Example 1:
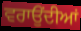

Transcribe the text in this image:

ਵਰਾਉਂਦੀਆਂ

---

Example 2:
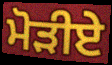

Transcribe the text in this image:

ਮੋੜੀਏ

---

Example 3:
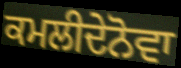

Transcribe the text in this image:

ਕਮਲੀਦੇਨੋਵਾ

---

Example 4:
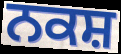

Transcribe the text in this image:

ਨਕਸ਼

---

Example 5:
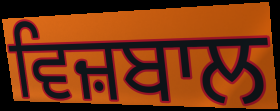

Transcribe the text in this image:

ਵਿਜ਼ਬਾਲ